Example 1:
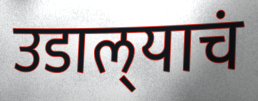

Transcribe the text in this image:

उडाल्याचं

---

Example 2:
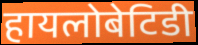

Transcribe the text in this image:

हायलोबेटिडी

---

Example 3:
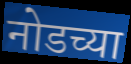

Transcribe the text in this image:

नोडच्या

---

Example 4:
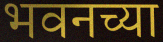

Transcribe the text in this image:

भवनच्या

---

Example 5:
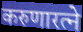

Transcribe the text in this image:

करुणारत्ने